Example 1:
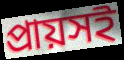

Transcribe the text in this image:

প্রায়সই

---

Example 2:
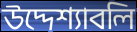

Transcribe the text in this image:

উদ্দেশ্যাবলি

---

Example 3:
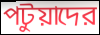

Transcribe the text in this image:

পটুয়াদের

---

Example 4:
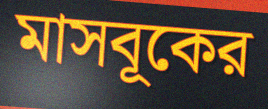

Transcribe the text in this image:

মাসবূকের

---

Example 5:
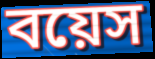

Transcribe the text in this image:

বয়েস